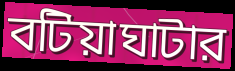
বটিয়াঘাটার